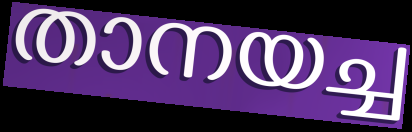
താനയച്ച